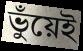
ভুঁয়েই